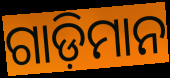
ଗାଡ଼ିମାନ